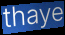
thaye